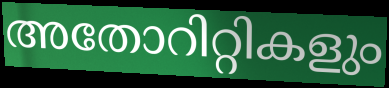
അതോറിറ്റികളും